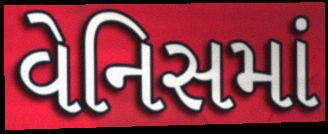
વેનિસમાં